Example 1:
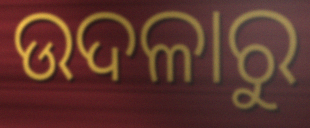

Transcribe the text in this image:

ଉଦଳାରୁ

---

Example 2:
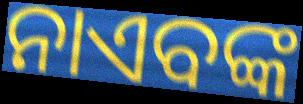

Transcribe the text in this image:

ନାଏବଙ୍କ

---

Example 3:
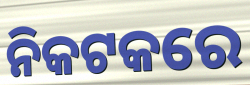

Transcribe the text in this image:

ନିକଟକରେ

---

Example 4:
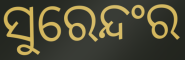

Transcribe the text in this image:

ସୁରେନ୍ଦଂର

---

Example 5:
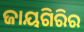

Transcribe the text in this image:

ଜାୟଗିରିର